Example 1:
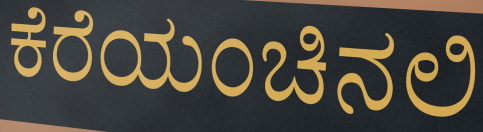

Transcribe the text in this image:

ಕೆರೆಯಂಚಿನಲಿ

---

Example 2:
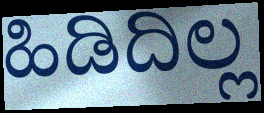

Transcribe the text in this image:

ಹಿಡಿದಿಲ್ಲ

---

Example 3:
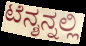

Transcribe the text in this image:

ಟೆನ್ಶನ್ನಲ್ಲಿ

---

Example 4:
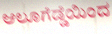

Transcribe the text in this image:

ಆಲೂಗೆಡ್ಡೆಯಿಂದ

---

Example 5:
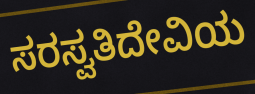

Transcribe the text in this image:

ಸರಸ್ವತಿದೇವಿಯ